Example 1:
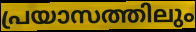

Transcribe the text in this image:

പ്രയാസത്തിലും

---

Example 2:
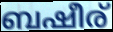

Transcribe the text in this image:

ബഷീര്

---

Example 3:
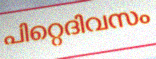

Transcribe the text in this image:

പിറ്റെദിവസം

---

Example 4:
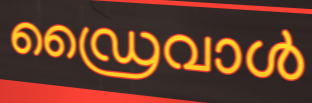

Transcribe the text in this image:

ഡ്രൈവാൾ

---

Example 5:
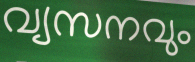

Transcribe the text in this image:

വ്യസനവും